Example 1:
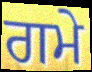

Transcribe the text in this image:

ਗਮੇ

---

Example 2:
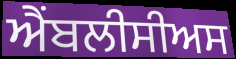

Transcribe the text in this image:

ਐਂਬਲੀਸੀਅਸ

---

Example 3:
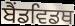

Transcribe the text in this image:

ਬੈਂਡਵਿਡਥ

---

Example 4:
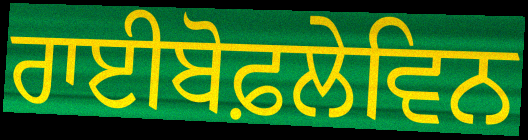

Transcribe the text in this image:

ਰਾਈਬੋਫ਼ਲੇਵਿਨ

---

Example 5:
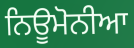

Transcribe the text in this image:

ਨਿਊਮੋਨੀਆ